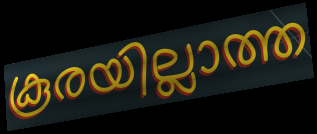
കൂരയില്ലാത്ത